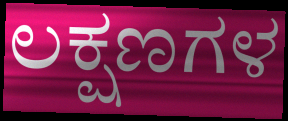
ಲಕ್ಷಣಗಳ